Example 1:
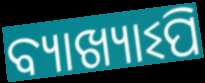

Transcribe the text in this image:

ବ୍ୟାଖ୍ୟାଽପି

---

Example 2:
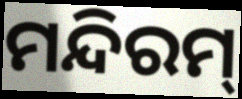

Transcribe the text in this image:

ମନ୍ଦିରମ୍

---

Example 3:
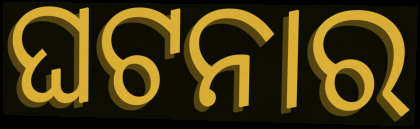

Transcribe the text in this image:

ଘଟନାର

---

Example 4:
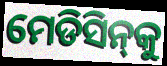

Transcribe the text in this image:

ମେଡିସିନ୍‌କୁ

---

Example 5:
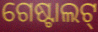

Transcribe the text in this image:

ଗେଷ୍ଟାଲଟ୍